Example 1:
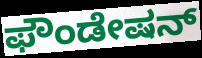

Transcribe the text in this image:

ಫೌಂಡೇಷನ್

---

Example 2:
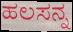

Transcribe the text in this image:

ಹಲಸನ್ನ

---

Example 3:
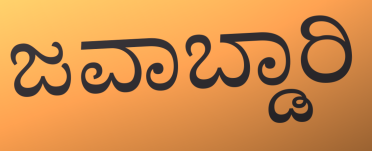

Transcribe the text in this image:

ಜವಾಬ್ಡಾರಿ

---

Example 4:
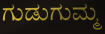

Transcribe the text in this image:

ಗುಡುಗುಮ್ಮ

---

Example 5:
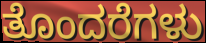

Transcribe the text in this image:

ತೊಂದರೆಗಳು